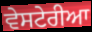
ਵੇਸਟੇਰੀਆ